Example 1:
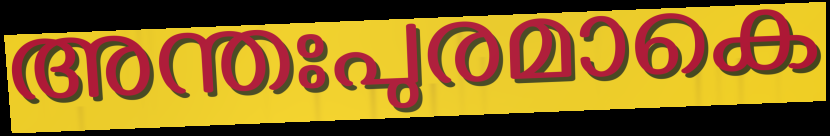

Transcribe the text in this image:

അന്തഃപുരമാകെ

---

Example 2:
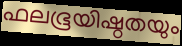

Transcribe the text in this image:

ഫലഭൂയിഷ്ഠതയും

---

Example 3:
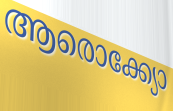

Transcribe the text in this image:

ആരൊക്ക്യോ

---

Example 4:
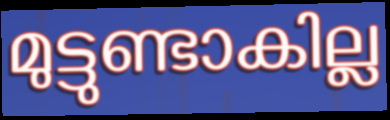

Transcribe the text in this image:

മുട്ടുണ്ടാകില്ല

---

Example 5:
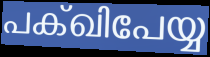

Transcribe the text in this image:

പക്ഖിപേയ്യ